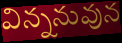
విన్ననువున